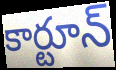
కార్టూన్